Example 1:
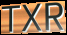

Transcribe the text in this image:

TXR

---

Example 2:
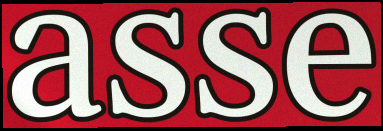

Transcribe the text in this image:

asse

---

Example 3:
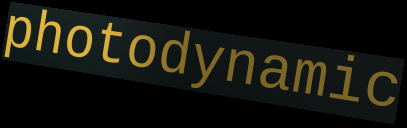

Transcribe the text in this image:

photodynamic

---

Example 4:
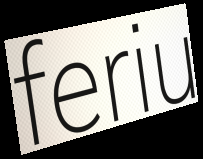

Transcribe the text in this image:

feriu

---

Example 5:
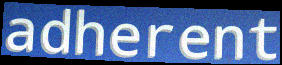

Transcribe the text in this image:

adherent